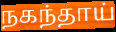
நகந்தாய்